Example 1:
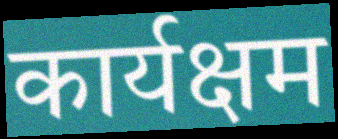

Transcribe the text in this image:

कार्यक्षम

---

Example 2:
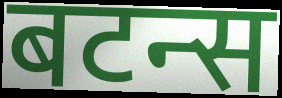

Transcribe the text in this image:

बटन्स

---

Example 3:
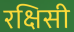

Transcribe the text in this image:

रक्षिसी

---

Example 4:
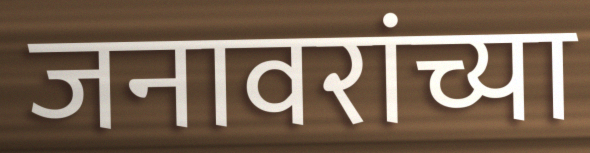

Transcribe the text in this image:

जनावरांच्या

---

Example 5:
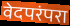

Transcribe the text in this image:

वेदपरंपरा